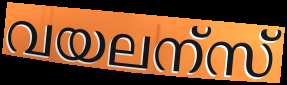
വയലന്സ്